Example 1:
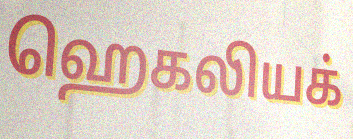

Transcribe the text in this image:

ஹெகலியக்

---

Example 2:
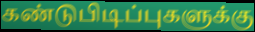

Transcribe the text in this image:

கண்டுபிடிப்புகளுக்கு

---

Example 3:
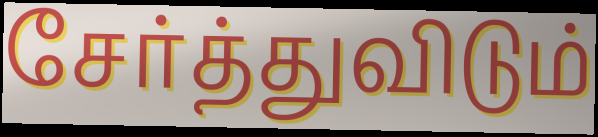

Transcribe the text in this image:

சேர்த்துவிடும்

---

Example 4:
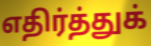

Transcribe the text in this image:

எதிர்த்துக்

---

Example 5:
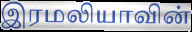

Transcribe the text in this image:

இரமலியாவின்